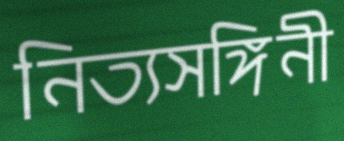
নিত্যসঙ্গিনী